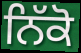
ਨਿੱਕੋ